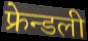
फ्रेन्डली